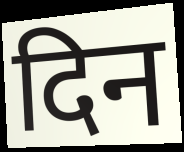
दिन